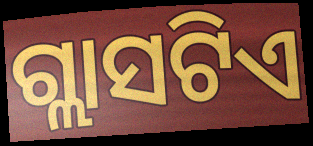
ଗ୍ଲାସଟିଏ